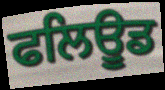
ਫਲਿਊਡ